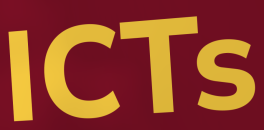
ICTs